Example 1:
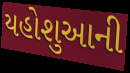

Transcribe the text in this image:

યહોશુઆની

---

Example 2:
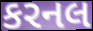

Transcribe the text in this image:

કરનલ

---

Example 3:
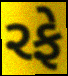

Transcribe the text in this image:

રફે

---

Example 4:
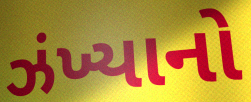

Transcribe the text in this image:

ઝંખ્યાનો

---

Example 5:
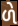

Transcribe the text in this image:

ળે